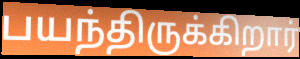
பயந்திருக்கிறார்